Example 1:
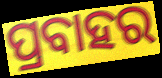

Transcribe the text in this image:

ପ୍ରବାହର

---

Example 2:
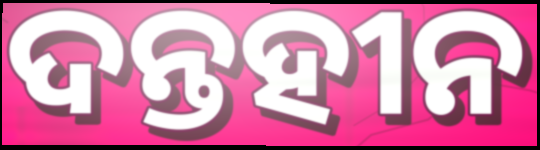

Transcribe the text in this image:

ଦନ୍ତହୀନ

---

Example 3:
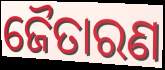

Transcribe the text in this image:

ଜୈତାରଣ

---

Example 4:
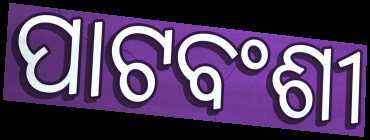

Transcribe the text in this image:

ପାଟବଂଶୀ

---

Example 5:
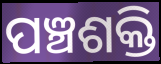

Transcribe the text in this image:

ପଞ୍ଚଶକ୍ତି